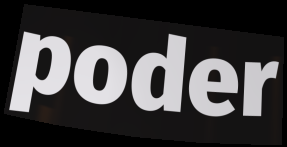
poder